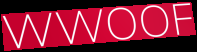
WWOOF